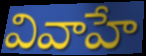
వివాహే